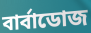
বার্বাডোজ